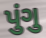
પુંગુ